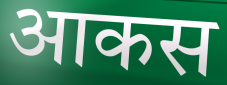
आकस